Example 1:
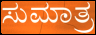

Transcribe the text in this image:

ಸುಮಾತ್ರ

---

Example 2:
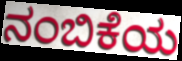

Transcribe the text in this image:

ನಂಬಿಕೆಯ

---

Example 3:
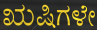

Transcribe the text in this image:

ಋಷಿಗಳೇ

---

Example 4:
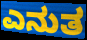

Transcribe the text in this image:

ಎನುತ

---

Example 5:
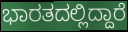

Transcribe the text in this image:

ಭಾರತದಲ್ಲಿದ್ದಾರೆ